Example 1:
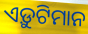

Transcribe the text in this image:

ଏଡ଼ୁଟିମାନ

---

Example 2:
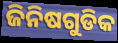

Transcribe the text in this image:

ଜିନିଷଗୁଡିକ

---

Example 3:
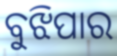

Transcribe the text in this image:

ବୁଝିପାର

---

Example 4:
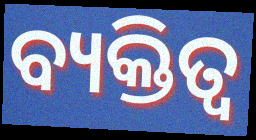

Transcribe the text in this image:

ବ୍ୟକ୍ତିତ୍ଵ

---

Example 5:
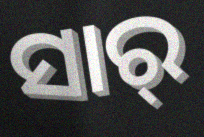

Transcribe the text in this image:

ସାର୍